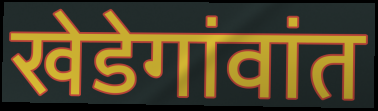
खेडेगांवांत